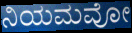
ನಿಯಮವೋ